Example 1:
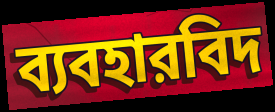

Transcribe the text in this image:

ব্যবহারবিদ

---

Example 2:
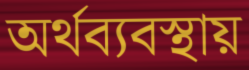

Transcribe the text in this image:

অর্থব্যবস্থায়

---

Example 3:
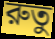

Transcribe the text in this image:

রুতু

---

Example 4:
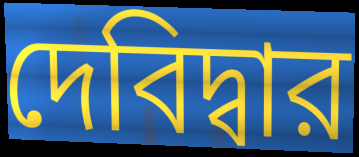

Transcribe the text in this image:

দেবিদ্বার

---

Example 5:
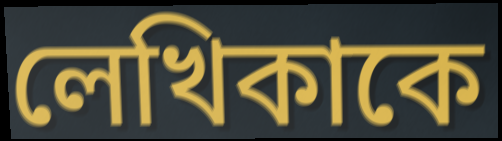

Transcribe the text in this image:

লেখিকাকে